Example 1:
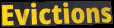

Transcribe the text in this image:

Evictions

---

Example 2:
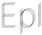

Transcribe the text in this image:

Epl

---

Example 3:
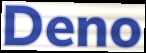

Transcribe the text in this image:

Deno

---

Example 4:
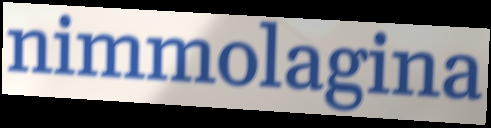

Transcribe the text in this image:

nimmolagina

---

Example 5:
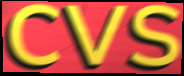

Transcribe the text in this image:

cvs